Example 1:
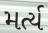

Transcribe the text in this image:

મર્ત્ય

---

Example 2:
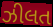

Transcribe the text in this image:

ઝીલત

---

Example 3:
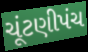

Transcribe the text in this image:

ચૂંટણીપંચ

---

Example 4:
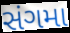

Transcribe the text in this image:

સંગમા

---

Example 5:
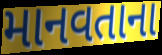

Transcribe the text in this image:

માનવતાના